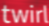
twirl